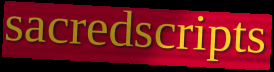
sacredscripts